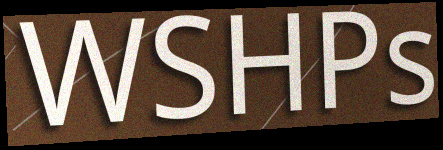
WSHPs